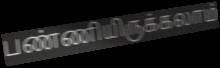
பண்ணியிருக்கலாம்